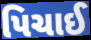
પિચાઈ